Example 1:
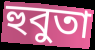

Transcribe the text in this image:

হুবুতা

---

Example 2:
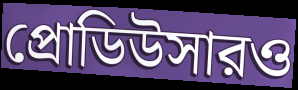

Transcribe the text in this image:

প্রোডিউসারও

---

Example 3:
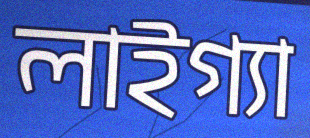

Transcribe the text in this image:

লাইগ্যা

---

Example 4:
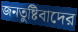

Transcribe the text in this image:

জনতুষ্টিবাদের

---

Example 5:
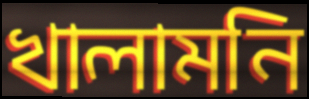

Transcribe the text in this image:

খালামনি